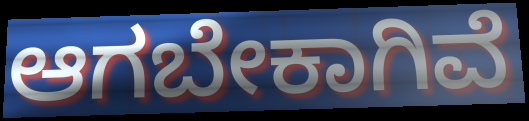
ಆಗಬೇಕಾಗಿವೆ